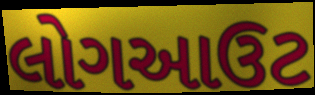
લોગઆઉટ